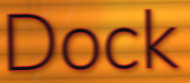
Dock